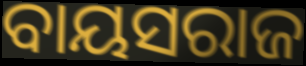
ବାୟସରାଜ